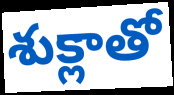
శుక్లాతో